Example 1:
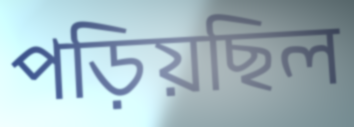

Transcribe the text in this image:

পড়িয়ছিল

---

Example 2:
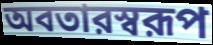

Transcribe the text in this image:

অবতারস্বরূপ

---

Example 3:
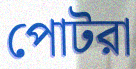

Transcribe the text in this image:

পোটরা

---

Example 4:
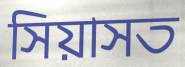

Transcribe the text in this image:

সিয়াসত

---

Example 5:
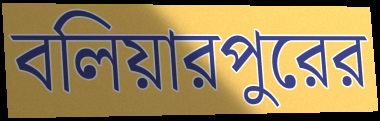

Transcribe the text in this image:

বলিয়ারপুরের